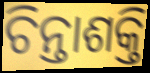
ଚିନ୍ତାଶକ୍ତି